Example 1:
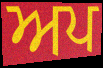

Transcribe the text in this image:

ਅਪ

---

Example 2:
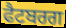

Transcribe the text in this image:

ਫੈਟਬਰਗ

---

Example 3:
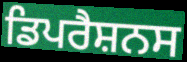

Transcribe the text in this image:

ਡਿਪਰੈਸ਼ਨਸ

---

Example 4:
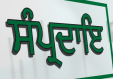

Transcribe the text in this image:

ਸੰਪ੍ਰਦਾਇ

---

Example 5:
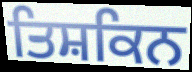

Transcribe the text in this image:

ਤਿਸ਼ਕਿਨ